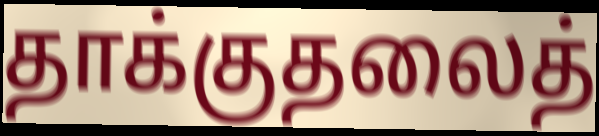
தாக்குதலைத்